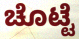
ಚೊಟ್ಟೆ